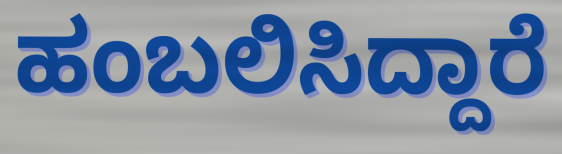
ಹಂಬಲಿಸಿದ್ದಾರೆ